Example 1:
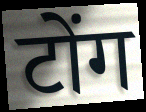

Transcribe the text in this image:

टोंग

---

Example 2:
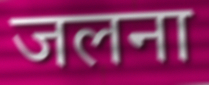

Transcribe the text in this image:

जलना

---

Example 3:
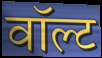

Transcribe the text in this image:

वॉल्ट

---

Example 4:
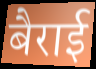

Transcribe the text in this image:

बैराई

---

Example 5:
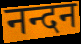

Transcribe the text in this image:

नन्‍दन